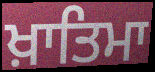
ਖ਼ਾਤਿਮਾ